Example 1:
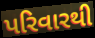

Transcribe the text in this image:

પરિવારથી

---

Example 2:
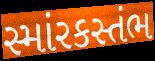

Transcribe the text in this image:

સ્માંરકસ્તંભ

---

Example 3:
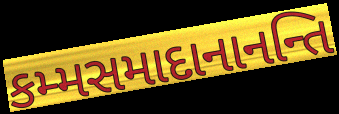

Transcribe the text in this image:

કમ્મસમાદાનાનન્તિ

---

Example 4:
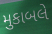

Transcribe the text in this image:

મુકાબલે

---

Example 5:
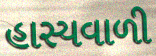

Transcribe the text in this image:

હાસ્યવાળી